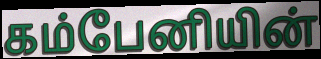
கம்பேனியின்